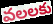
వలలకు